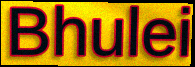
Bhulei